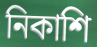
নিকাশি